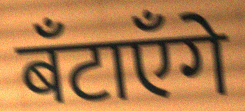
बँटाएँगे